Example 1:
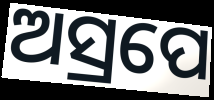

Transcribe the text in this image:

ଅସ୍ରପେ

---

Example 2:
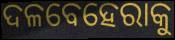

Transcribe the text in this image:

ଦଳବେହେରାକୁ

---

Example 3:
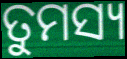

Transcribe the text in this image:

ତୁମସ୍ୟ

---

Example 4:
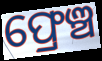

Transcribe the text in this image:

ଫ୍ରେଞ୍ଚ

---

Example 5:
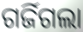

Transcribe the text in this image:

ଗର୍ଜିଗଲା